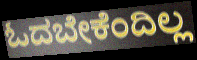
ಓದಬೇಕೆಂದಿಲ್ಲ